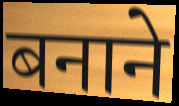
बनाने